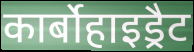
कार्बोहाइड्रैट